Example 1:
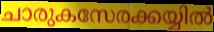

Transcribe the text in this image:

ചാരുകസേരക്കയ്യിൽ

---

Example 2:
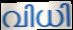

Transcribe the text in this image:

വിധി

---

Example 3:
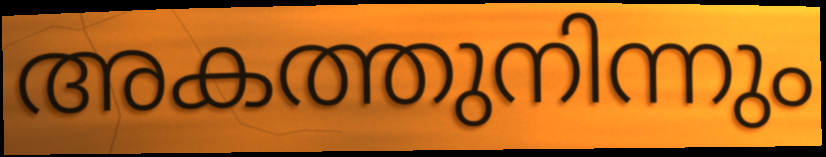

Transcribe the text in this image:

അകത്തുനിന്നും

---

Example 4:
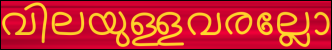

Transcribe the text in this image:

വിലയുള്ളവരല്ലോ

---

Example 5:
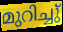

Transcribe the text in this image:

മുറിച്ചു്